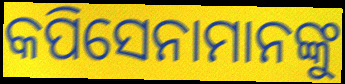
କପିସେନାମାନଙ୍କୁ